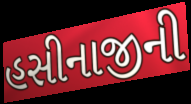
હસીનાજીની